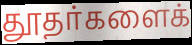
தூதர்களைக்